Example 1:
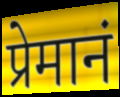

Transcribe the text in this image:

प्रेमानं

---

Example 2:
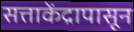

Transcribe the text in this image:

सत्ताकेंद्रापासून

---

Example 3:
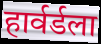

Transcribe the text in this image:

हार्वर्डला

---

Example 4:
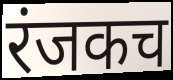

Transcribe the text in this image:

रंजकच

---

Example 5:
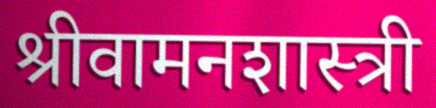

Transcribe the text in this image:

श्रीवामनशास्त्री